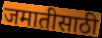
जमातीसाठी